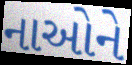
નાઓને